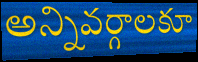
అన్నివర్గాలకూ